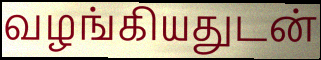
வழங்கியதுடன்